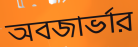
অবজার্ভার